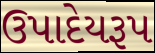
ઉપાદેયરૂપ